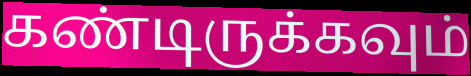
கண்டிருக்கவும்